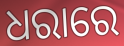
ଧରାରେ